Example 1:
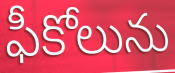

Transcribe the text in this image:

ఫీకోలును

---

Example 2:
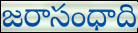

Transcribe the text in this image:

జరాసంధాది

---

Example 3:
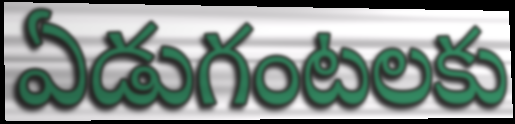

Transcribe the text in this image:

ఏడుగంటలకు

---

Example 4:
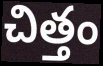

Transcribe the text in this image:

చిత్తం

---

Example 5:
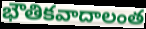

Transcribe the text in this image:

భౌతికవాదాలంత